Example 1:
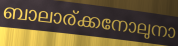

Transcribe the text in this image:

ബാലാര്ക്കനോലുനാ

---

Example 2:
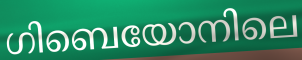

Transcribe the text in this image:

ഗിബെയോനിലെ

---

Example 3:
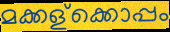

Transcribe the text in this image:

മക്കള്ക്കൊപ്പം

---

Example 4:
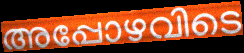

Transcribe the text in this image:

അപ്പോഴവിടെ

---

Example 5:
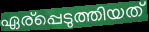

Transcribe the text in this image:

ഏര്പ്പെടുത്തിയത്